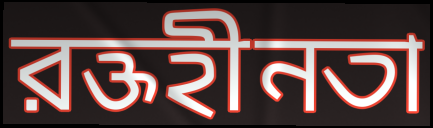
রক্তহীনতা